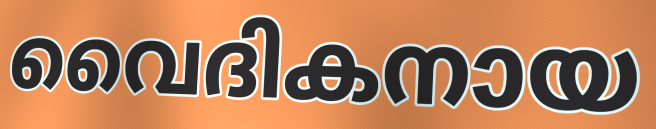
വൈദികനായ